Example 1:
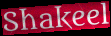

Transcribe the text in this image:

Shakeel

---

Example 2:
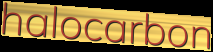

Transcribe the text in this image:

halocarbon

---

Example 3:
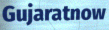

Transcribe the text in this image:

Gujaratnow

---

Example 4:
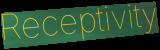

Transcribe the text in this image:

Receptivity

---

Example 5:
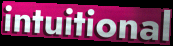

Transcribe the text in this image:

intuitional